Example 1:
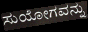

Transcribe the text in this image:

ಸುಯೋಗವನ್ನು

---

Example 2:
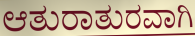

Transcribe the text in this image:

ಆತುರಾತುರವಾಗಿ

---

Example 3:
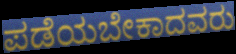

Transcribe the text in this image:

ಪಡೆಯಬೇಕಾದವರು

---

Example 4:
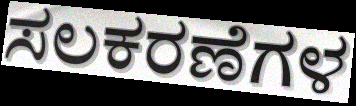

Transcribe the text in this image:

ಸಲಕರಣೆಗಳ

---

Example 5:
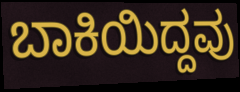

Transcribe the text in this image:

ಬಾಕಿಯಿದ್ದವು